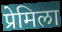
प्रेमिला